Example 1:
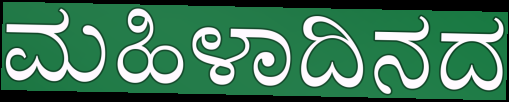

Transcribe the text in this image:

ಮಹಿಳಾದಿನದ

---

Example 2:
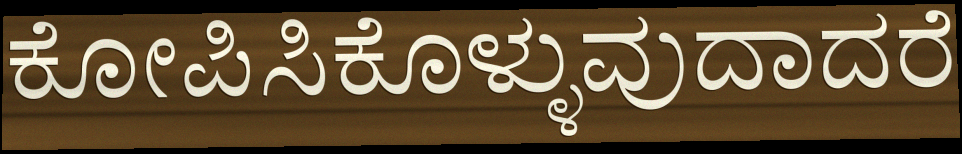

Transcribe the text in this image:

ಕೋಪಿಸಿಕೊಳ್ಳುವುದಾದರೆ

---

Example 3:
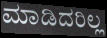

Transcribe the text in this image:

ಮಾಡಿದರಿಲ್ಲ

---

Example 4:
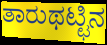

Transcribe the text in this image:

ತಾರುಥಟ್ಟಿನ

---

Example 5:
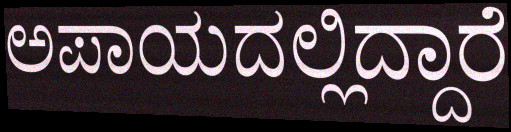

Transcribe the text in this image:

ಅಪಾಯದಲ್ಲಿದ್ದಾರೆ